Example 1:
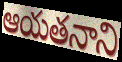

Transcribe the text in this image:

ఆయతనాని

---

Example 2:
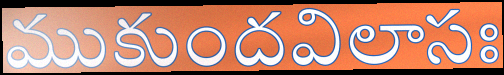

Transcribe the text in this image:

ముకుందవిలాసః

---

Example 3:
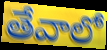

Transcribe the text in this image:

తేవాలో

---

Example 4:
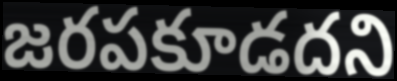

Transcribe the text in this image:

జరపకూడదని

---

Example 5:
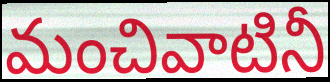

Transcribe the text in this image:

మంచివాటినీ